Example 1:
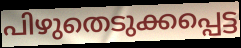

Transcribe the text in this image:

പിഴുതെടുക്കപ്പെട്ട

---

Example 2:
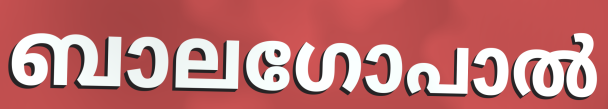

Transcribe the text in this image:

ബാലഗോപാൽ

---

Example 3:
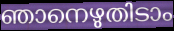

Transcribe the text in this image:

ഞാനെഴുതിടാം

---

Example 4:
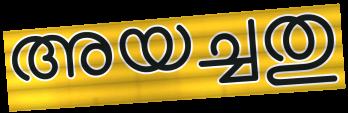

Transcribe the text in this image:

അയച്ചതു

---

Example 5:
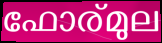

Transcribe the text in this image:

ഫോര്മുല